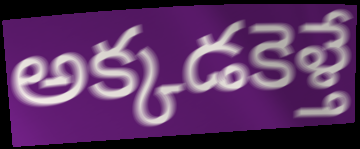
అక్కడకెళ్తే